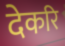
देकरि